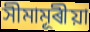
সীমামূৰীয়া